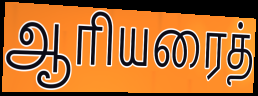
ஆரியரைத்